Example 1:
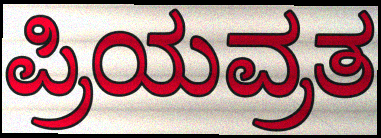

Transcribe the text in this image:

ಪ್ರಿಯವ್ರತ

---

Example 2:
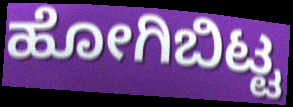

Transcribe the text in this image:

ಹೋಗಿಬಿಟ್ಟ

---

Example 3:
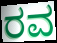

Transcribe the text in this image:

ರವ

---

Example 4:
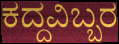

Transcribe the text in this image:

ಕದ್ದವಿಬ್ಬರ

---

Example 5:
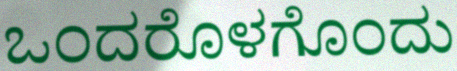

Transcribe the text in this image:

ಒಂದರೊಳಗೊಂದು